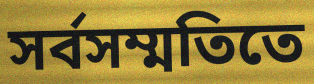
সর্বসম্মতিতে